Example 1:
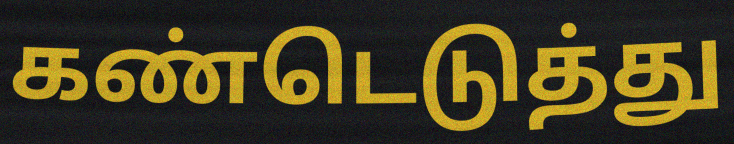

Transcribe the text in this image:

கண்டெடுத்து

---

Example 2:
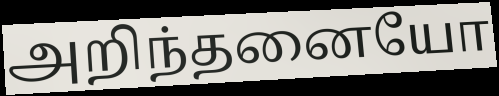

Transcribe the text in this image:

அறிந்தனையோ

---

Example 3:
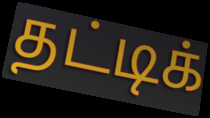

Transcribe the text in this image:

தட்டிக்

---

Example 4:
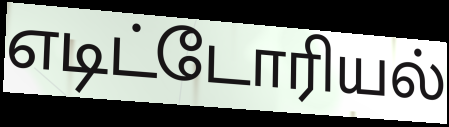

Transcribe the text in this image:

எடிட்டோரியல்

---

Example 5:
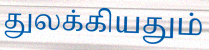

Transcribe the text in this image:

துலக்கியதும்